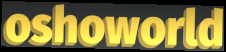
oshoworld